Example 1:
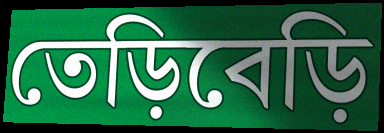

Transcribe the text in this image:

তেড়িবেড়ি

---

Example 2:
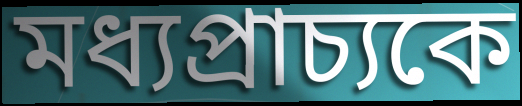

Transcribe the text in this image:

মধ্যপ্রাচ্যকে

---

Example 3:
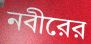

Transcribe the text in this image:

নবীরের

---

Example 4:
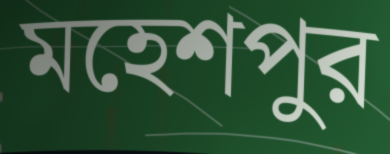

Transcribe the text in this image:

মহেশপুর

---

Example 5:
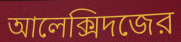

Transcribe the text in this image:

আলেক্সিদজের